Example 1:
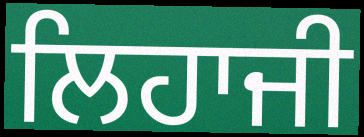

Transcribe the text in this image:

ਲਿਹਾਜੀ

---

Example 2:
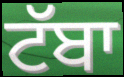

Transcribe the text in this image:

ਟੱਬਾ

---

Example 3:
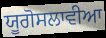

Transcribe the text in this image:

ਯੂਗੋਸਲਾਵੀਆ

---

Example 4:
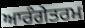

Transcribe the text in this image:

ਆਰੰਗੇਤਰਮ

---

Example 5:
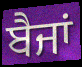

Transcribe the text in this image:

ਬੈਜਾਂ